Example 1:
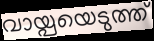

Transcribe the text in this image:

വായ്പയെടുത്ത്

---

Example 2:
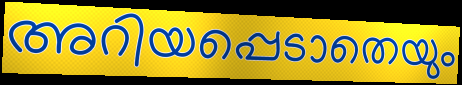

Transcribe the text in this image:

അറിയപ്പെടാതെയും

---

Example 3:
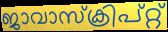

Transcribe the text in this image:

ജാവാസ്ക്രിപ്റ്റ്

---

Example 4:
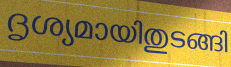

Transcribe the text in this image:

ദൃശ്യമായിതുടങ്ങി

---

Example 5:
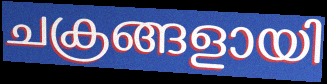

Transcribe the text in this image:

ചക്രങ്ങളായി